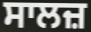
ਸਾਲਜ਼